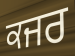
ਕਜਰ